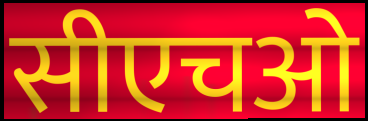
सीएचओ